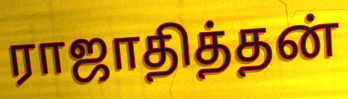
ராஜாதித்தன்